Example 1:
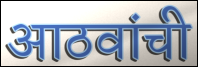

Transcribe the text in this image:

आठवांची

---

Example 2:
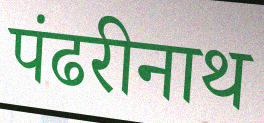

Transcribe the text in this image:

पंढरीनाथ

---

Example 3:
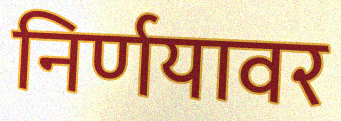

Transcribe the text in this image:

निर्णयावर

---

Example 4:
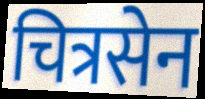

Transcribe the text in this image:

चित्रसेन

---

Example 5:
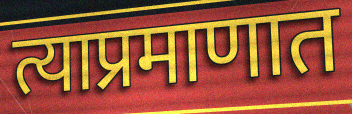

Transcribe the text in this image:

त्याप्रमाणात